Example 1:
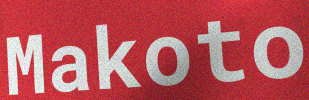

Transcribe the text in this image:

Makoto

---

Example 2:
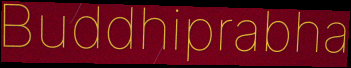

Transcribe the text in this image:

Buddhiprabha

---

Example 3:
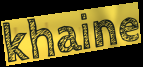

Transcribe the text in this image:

khaine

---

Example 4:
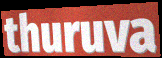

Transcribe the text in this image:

thuruva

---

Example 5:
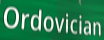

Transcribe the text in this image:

Ordovician